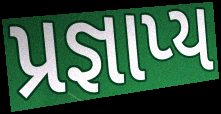
પ્રજ્ઞાપ્ય